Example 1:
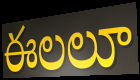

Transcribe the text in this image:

ఈలలూ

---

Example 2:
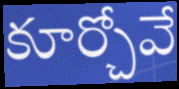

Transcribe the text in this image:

కూర్చోవే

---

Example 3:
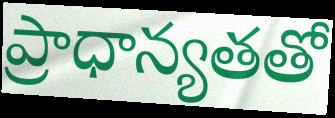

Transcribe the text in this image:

ప్రాధాన్యతతో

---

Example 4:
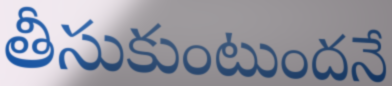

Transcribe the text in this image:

తీసుకుంటుందనే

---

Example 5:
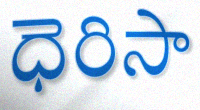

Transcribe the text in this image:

ధెరిసా